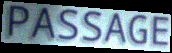
PASSAGE